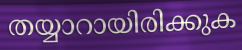
തയ്യാറായിരിക്കുക